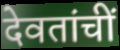
देवतांचीं